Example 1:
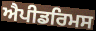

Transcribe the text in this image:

ਐਪੀਡਰਿਮਸ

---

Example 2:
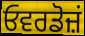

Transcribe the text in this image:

ਓਵਰਡੋਜ਼ਂ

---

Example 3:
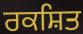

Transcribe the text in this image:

ਰਕਸ਼ਿਤ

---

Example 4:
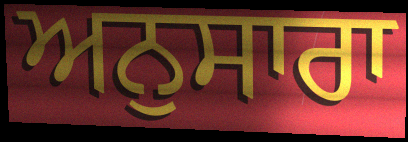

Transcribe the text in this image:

ਅਨੁਸਾਰਾ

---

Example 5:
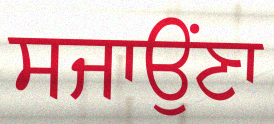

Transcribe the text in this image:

ਸਜਾਉਂਣਾ